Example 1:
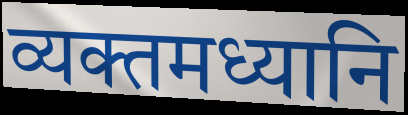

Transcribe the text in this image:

व्यक्तमध्यानि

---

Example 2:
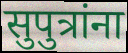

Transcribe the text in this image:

सुपुत्रांना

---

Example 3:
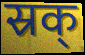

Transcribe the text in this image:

स्रक्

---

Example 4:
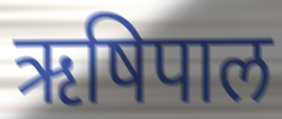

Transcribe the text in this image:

ऋषिपाल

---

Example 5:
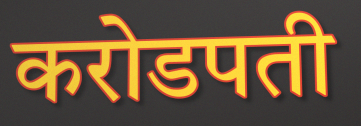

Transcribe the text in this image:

करोडपती